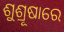
ଶୁଶ୍ରୂଷାରେ